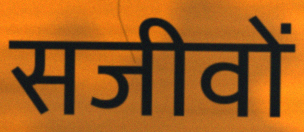
सजीवों